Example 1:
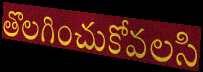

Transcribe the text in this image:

తొలగించుకోవలసి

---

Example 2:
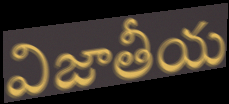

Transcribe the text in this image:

విజాతీయ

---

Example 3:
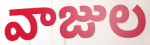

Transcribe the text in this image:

వాజుల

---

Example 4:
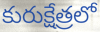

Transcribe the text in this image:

కురుక్షేత్రలో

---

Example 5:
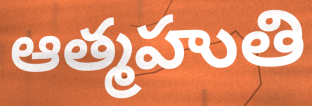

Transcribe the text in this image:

ఆత్మహుతి